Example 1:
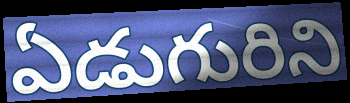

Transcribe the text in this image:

ఏడుగురిని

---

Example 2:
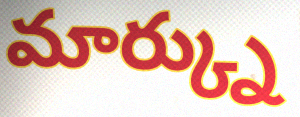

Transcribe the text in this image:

మార్క్ను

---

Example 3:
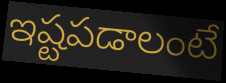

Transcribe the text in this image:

ఇష్టపడాలంటే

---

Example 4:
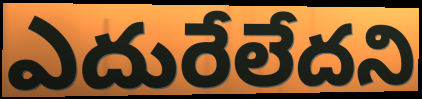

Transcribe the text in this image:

ఎదురేలేదని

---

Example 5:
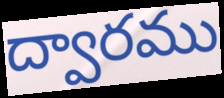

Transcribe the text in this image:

ద్వారము